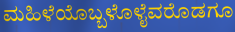
ಮಹಿಳೆಯೊಬ್ಬಳೊಳೈವರೊಡಗೂ